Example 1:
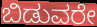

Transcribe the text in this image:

ಬಿಡುವರೇ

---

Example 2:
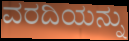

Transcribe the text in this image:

ವರದಿಯನ್ನು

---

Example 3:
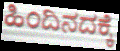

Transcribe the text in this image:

ಹಿಂದಿನದಕ್ಕೆ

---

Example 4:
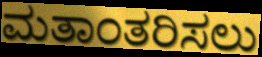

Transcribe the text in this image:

ಮತಾಂತರಿಸಲು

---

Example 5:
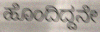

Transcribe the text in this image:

ಹೊಂದಿದ್ದನೇ